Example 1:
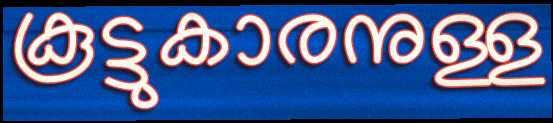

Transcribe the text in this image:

കൂട്ടുകാരനുള്ള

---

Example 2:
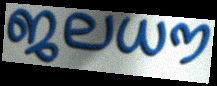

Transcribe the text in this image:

ജലധൗ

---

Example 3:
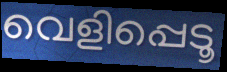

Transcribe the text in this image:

വെളിപ്പെടൂ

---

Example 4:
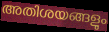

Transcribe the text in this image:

അതിശയങ്ങളും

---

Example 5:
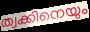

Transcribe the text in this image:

ത്വക്കിനെയും